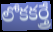
లోకకర్త్రే